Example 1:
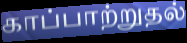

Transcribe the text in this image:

காப்பாற்றுதல்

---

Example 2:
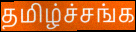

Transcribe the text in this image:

தமிழ்ச்சங்க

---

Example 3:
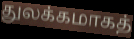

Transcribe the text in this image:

துலக்கமாகத்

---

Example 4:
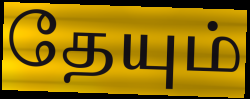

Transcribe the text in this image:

தேயும்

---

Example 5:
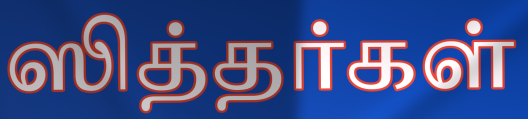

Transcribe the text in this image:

ஸித்தர்கள்